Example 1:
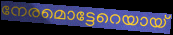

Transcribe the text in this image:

നേരമൊട്ടേറെയായ്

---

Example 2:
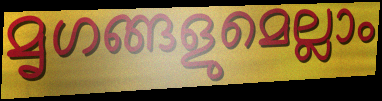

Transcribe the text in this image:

മൃഗങ്ങളുമെല്ലാം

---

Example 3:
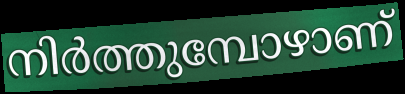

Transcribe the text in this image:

നിർത്തുമ്പോഴാണ്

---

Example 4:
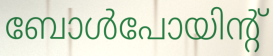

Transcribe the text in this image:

ബോൾപോയിന്റ്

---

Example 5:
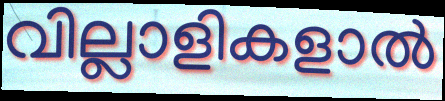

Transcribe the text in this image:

വില്ലാളികളാൽ